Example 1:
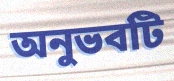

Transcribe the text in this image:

অনুভবটি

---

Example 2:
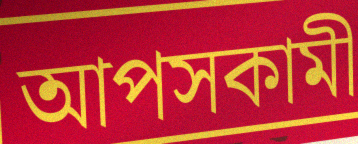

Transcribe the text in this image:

আপসকামী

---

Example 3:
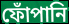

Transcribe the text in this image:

ফোঁপানি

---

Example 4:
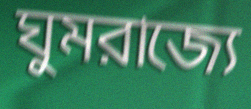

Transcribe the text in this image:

ঘুমরাজ্যে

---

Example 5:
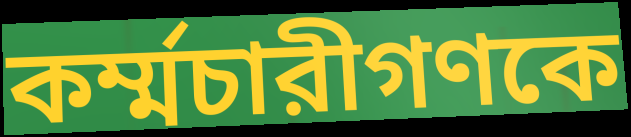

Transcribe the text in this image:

কর্ম্মচারীগণকে